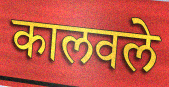
कालवले